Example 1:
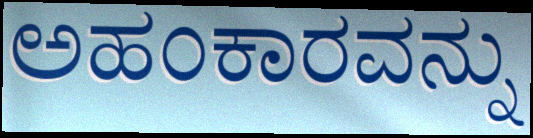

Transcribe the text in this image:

ಅಹಂಕಾರವನ್ನು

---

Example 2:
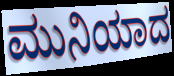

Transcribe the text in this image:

ಮುನಿಯಾದ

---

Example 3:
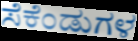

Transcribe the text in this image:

ಸೆಕೆಂಡುಗಳ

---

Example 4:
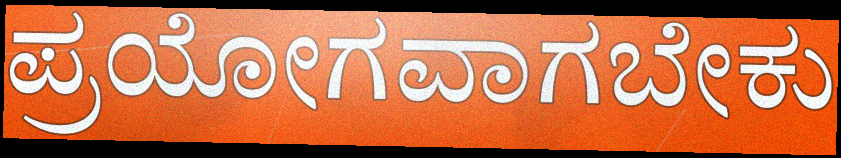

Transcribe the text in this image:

ಪ್ರಯೋಗವಾಗಬೇಕು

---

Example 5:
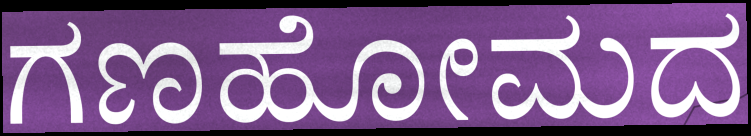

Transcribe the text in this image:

ಗಣಹೋಮದ